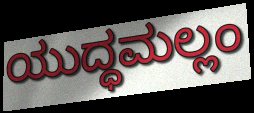
ಯುದ್ಧಮಲ್ಲಂ